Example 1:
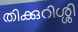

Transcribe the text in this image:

തിക്കുറിശ്ശി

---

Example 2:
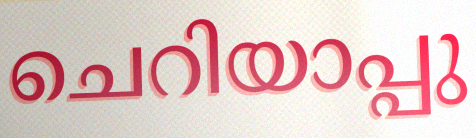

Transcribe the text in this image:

ചെറിയാപ്പു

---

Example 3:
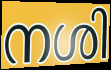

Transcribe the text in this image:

നശി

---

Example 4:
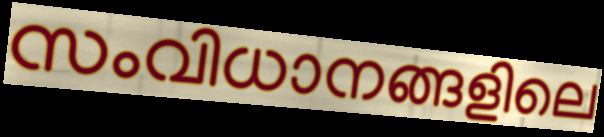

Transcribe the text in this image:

സംവിധാനങ്ങളിലെ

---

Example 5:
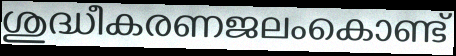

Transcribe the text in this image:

ശുദ്ധീകരണജലംകൊണ്ട്